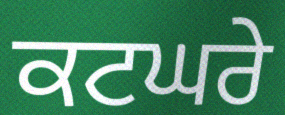
ਕਟਘਰੇ